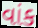
વાંક